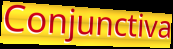
Conjunctiva